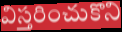
విస్తరించుకొని